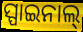
ସ୍ପାଇନାଲ୍